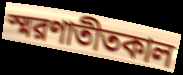
স্মরণাতীতকাল